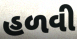
હળવી